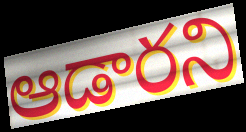
ఆడారని